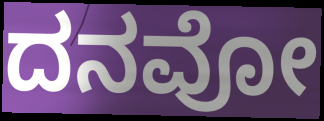
ದನವೋ